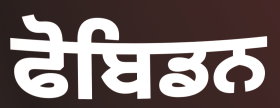
ਫੋਬਿਡਨ